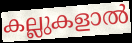
കല്ലുകളാൽ